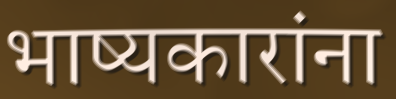
भाष्यकारांना